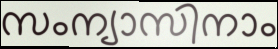
സംന്യാസിനാം